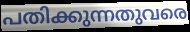
പതിക്കുന്നതുവരെ